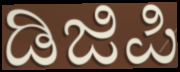
ಡಿಜಿಪಿ